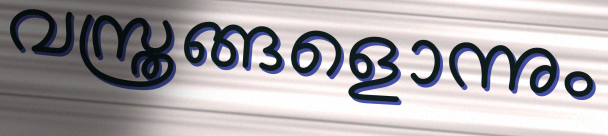
വസ്ത്രങ്ങളൊന്നും